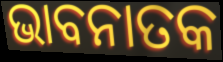
ଭାବନାତକ